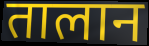
तालान